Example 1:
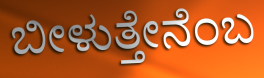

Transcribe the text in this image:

ಬೀಳುತ್ತೇನೆಂಬ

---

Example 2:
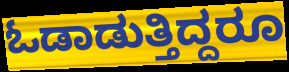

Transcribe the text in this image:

ಓಡಾಡುತ್ತಿದ್ದರೂ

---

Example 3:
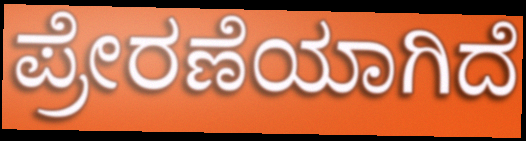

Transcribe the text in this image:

ಪ್ರೇರಣೆಯಾಗಿದೆ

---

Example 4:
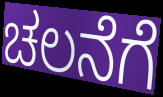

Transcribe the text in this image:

ಚಲನೆಗೆ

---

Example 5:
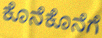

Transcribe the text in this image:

ಕೊನೆಕೊನೆಗೆ